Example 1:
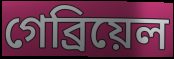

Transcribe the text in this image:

গেব্রিয়েল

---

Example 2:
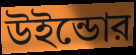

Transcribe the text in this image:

উইন্ডোর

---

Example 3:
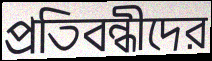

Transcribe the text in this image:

প্রতিবন্ধীদের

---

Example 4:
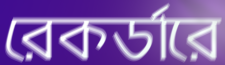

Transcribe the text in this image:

রেকর্ডারে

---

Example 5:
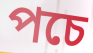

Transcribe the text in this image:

পচে